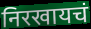
निरखायचं